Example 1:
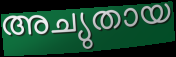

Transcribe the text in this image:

അച്യുതായ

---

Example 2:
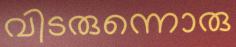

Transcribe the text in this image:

വിടരുന്നൊരു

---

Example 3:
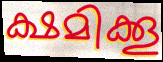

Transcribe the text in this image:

ക്ഷമിക്കൂ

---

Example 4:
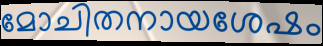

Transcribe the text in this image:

മോചിതനായശേഷം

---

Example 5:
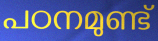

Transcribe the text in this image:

പഠനമുണ്ട്